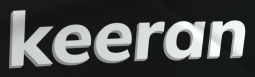
keeran